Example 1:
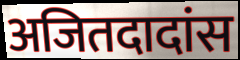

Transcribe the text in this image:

अजितदादांस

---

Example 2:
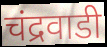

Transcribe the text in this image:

चंद्रवाडी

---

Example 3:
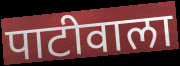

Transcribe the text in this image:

पाटीवाला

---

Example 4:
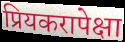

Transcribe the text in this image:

प्रियकरापेक्षा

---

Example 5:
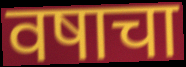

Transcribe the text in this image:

वषाचा